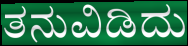
ತನುವಿಡಿದು